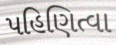
પહિણિત્વા